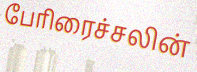
பேரிரைச்சலின்